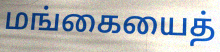
மங்கையைத்